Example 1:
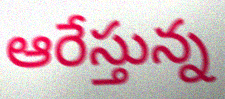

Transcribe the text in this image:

ఆరేస్తున్న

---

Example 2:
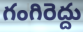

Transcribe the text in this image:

గంగిరెద్దు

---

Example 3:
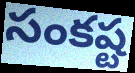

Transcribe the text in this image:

సంకష్ట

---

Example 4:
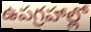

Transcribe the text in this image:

ఉపగ్రహాల్లో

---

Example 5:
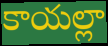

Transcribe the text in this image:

కాయల్లా